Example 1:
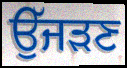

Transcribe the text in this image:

ਉੱਜੜਣ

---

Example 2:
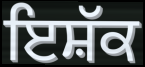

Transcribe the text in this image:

ਇਸ਼ੱਕ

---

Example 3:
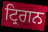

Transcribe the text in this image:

ਟ੍ਰਿਗਨ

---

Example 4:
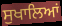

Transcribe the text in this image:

ਸੁਖਾਲਿਆਂ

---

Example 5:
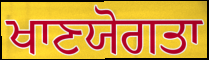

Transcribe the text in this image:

ਖਾਣਯੋਗਤਾ